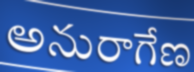
అనురాగేణ